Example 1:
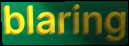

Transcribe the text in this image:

blaring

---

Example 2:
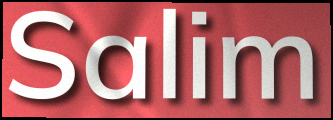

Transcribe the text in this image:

Salim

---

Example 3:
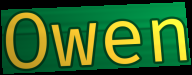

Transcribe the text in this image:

Owen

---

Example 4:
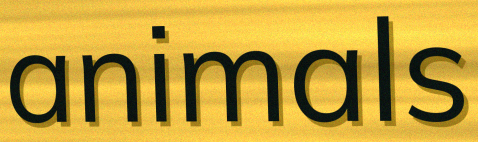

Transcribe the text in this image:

animals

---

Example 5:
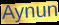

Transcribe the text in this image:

Aynun